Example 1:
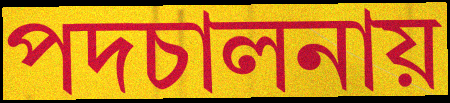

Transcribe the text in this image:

পদচালনায়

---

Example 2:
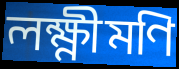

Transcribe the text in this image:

লক্ষ্ণীমণি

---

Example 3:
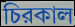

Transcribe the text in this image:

চিরকাল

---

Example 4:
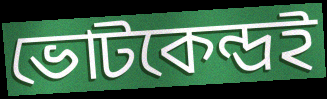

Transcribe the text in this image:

ভোটকেন্দ্রই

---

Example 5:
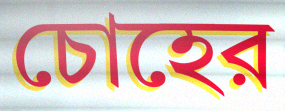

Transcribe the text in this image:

চোহের